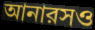
আনারসও